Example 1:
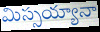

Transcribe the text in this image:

మిస్సయ్యానా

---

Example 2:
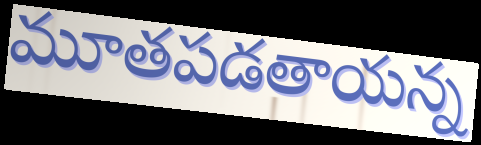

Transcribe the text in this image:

మూతపడతాయన్న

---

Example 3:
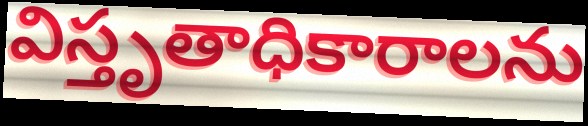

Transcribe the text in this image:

విస్తృతాధికారాలను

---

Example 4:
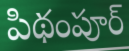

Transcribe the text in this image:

పిథంపూర్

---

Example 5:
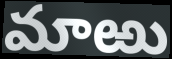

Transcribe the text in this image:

మాఱు